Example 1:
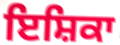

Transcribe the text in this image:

ਇਸ਼ਿਕਾ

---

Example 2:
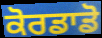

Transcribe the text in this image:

ਕੋਰਡਾਡੋ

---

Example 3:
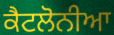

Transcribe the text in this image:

ਕੈਟਲੋਨੀਆ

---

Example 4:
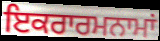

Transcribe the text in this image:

ਇਕਰਾਰਮਨਾਮਾਂ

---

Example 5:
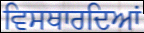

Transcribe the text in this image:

ਵਿਸਥਾਰਦਿਆਂ